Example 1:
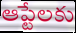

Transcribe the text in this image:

ఆప్టేలకు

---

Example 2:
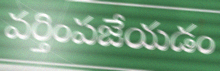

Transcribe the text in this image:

వర్తింపజేయడం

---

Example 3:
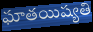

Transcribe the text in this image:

ఘాతయిష్యతి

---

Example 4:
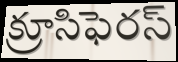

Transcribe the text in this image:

క్రూసిఫెరస్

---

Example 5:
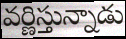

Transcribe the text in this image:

వర్ణిస్తున్నాడు